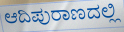
ಆದಿಪುರಾಣದಲ್ಲಿ